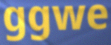
ggwe